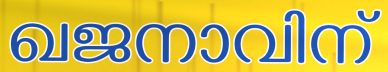
ഖജനാവിന്